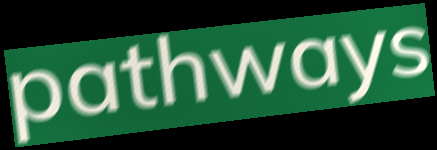
pathways